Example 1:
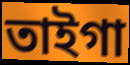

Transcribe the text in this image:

তাইগা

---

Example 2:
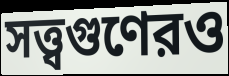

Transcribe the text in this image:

সত্ত্বগুণেরও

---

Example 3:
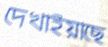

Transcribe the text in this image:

দেখাইয়াছে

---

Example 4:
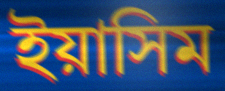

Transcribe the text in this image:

ইয়াসিম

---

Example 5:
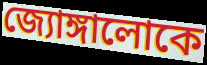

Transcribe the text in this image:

জ্যোঙ্গালোকে